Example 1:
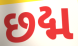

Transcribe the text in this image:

છદ્મ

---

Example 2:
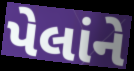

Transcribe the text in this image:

પેલાંને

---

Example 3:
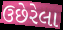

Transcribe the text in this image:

ઉછેરેલા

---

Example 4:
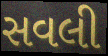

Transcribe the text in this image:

સવલી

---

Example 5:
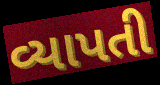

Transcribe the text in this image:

વ્યાપતી